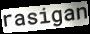
rasigan